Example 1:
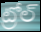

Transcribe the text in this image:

ట్రోల్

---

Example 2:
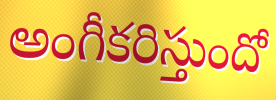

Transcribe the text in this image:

అంగీకరిస్తుందో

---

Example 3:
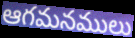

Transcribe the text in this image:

ఆగమనములు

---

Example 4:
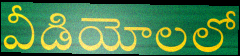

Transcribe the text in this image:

వీడియోలలో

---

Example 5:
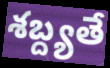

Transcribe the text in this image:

శబ్ద్యతే